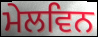
ਮੇਲਵਿਨ